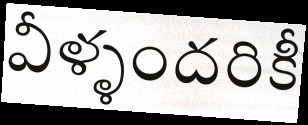
వీళ్ళందరికీ